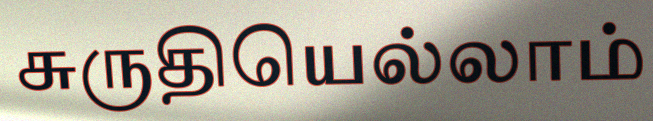
சுருதியெல்லாம்